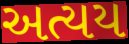
અત્યય